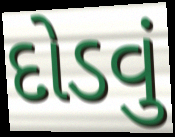
દોડવું